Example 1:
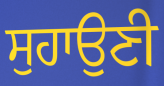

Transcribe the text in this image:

ਸੁਹਾਉਣੀ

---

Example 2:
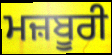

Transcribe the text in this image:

ਮਜ਼ਬੂਰੀ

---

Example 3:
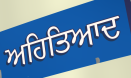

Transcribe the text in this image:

ਅਹਿਤਿਆਦ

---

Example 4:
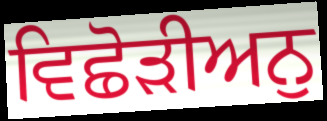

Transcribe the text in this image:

ਵਿਛੋੜੀਅਨੁ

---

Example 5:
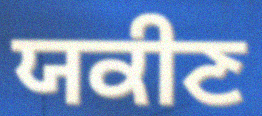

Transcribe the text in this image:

ਯਕੀਣ